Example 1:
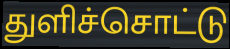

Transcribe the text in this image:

துளிச்சொட்டு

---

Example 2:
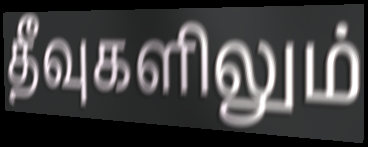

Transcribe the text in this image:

தீவுகளிலும்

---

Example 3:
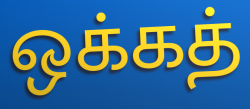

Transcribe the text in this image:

ஒக்கத்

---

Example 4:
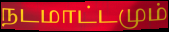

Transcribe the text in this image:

நடமாட்டமும்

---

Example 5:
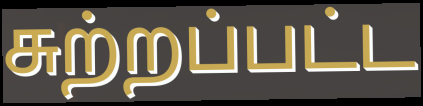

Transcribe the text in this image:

சுற்றப்பட்ட